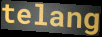
telang